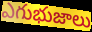
ఎగుభుజాలు